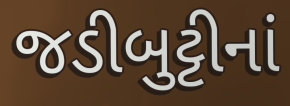
જડીબુટ્ટીનાં